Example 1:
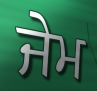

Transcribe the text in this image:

ਜੇਮ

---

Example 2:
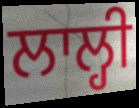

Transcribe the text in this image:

ਲਾਲ੍ਹੀ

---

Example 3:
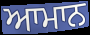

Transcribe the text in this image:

ਆਮਾਨ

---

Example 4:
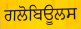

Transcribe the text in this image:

ਗਲੋਬਿਊਲਸ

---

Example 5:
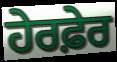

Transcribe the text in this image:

ਹੇਰਫ਼ੇਰ